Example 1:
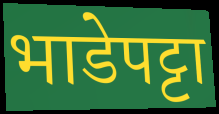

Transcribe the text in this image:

भाडेपट्टा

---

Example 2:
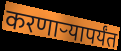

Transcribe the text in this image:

करणाऱ्यापर्यंत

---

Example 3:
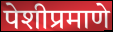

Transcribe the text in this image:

पेशीप्रमाणे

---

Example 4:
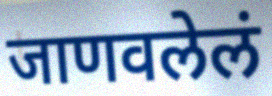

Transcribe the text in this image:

जाणवलेलं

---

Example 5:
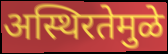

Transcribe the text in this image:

अस्थिरतेमुळे